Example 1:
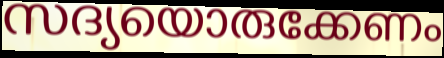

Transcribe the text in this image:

സദ്യയൊരുക്കേണം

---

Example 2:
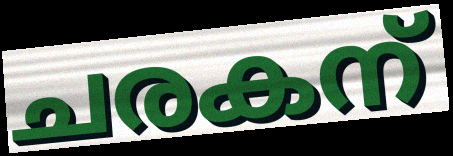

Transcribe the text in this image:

ചരകന്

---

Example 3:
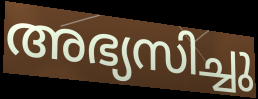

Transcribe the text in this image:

അഭ്യസിച്ചു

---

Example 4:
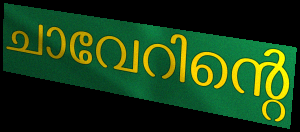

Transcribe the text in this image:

ചാവേറിന്റെ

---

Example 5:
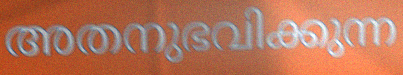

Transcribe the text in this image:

അതനുഭവിക്കുന്ന